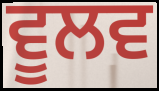
ਵੂਲਵ